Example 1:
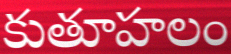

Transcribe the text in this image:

కుతూహలం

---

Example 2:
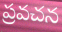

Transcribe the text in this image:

ప్రవచన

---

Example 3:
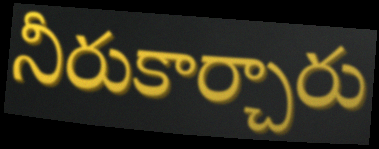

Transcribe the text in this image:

నీరుకార్చారు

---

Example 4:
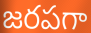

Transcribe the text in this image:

జరపగా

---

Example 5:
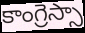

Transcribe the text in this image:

కాంగ్రెస్సా